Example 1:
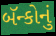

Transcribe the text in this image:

બૅન્કોનું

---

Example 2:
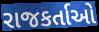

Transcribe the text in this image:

રાજકર્તાઓ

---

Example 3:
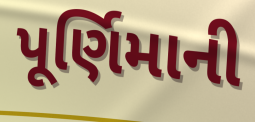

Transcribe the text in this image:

પૂર્ણિમાની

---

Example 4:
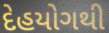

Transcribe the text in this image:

દેહયોગથી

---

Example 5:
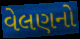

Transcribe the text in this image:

વેલણનો